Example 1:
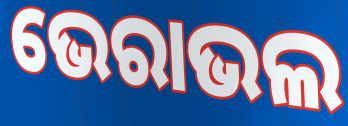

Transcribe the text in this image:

ଭେରାଭଲ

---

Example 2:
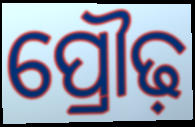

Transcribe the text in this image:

ପ୍ରୌଢ଼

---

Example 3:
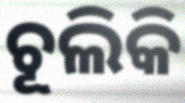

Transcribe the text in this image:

ଚୂଲିକି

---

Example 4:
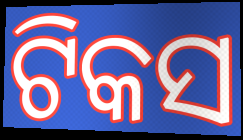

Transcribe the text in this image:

ଟିକସ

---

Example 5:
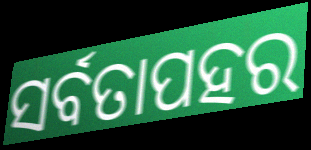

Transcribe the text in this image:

ସର୍ବତାପହର